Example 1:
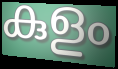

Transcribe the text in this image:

കുളം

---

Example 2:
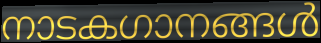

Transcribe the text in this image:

നാടകഗാനങ്ങൾ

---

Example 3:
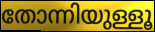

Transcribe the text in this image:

തോന്നിയുള്ളൂ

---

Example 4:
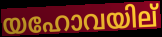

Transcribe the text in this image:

യഹോവയില്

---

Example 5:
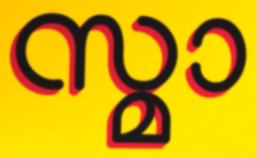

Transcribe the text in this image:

സ്മാ